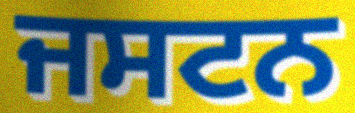
ਜਸਟਨ